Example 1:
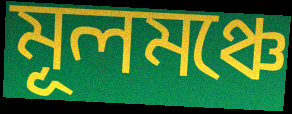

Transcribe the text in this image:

মূলমঞ্চে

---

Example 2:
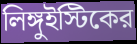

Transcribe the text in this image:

লিঙ্গুইস্টিকের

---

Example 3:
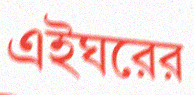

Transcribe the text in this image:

এইঘরের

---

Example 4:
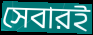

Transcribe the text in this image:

সেবারই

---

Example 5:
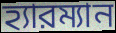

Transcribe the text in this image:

হ্যারম্যান